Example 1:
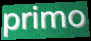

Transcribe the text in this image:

primo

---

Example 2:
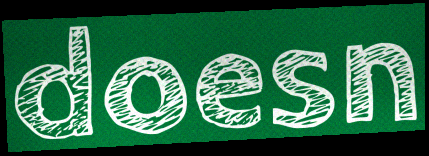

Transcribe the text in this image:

doesn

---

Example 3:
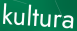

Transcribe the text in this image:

kultura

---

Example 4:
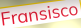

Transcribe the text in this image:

Fransisco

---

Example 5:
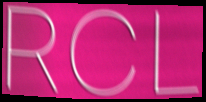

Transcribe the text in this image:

RCL